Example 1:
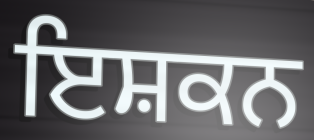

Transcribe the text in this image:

ਇਸ਼ਕਨ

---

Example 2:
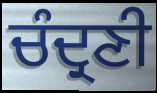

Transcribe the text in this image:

ਚੰਦ੍ਰਣੀ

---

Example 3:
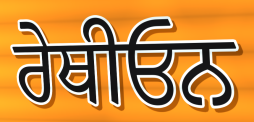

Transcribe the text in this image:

ਰੇਥੀਓਨ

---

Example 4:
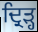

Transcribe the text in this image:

ਦ੍ਰਿੜ੍ਹ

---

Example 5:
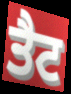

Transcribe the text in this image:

ਤੈਟ